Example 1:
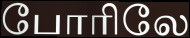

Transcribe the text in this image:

போரிலே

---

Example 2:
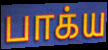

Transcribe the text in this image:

பாக்ய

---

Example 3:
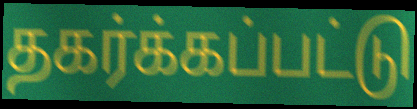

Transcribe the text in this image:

தகர்க்கப்பட்டு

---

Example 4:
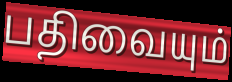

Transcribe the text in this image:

பதிவையும்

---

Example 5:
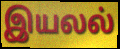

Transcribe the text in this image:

இயலல்